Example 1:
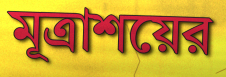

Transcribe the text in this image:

মূত্রাশয়ের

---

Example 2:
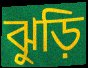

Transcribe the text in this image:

ঝুড়ি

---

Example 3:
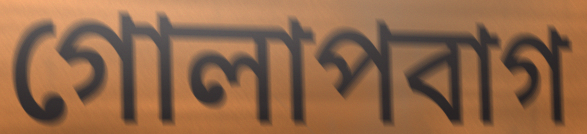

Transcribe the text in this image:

গোলাপবাগ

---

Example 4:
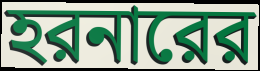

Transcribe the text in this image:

হরনারের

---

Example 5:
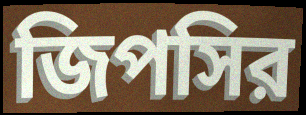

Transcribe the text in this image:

জিপসির